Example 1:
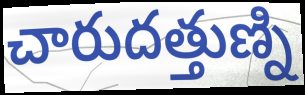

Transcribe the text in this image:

చారుదత్తుణ్ని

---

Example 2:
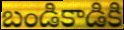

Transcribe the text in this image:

బండికాడికి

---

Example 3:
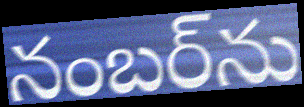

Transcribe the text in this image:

నంబర్‌ను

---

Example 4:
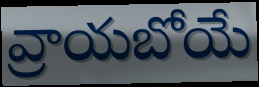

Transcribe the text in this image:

వ్రాయబోయే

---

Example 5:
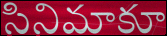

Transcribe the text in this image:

సినిమాకూ